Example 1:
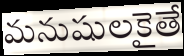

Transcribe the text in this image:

మనుషులకైతే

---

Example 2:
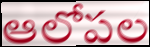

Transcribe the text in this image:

ఆలోపల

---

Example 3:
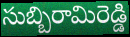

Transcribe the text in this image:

సుబ్బిరామిరెడ్డి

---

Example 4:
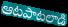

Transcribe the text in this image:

ఆటపాటలాడి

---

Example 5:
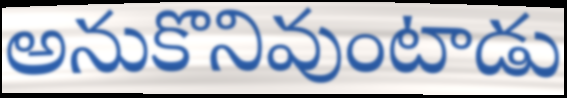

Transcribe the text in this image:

అనుకొనివుంటాడు